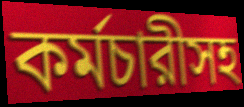
কর্মচারীসহ